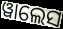
ୱାଲେସ